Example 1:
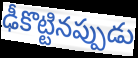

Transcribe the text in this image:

ఢీకొట్టినప్పుడు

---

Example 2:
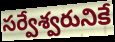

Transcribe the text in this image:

సర్వేశ్వరునికే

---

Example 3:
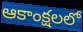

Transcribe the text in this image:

ఆకాంక్షలలో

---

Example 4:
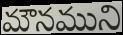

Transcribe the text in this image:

మౌనముని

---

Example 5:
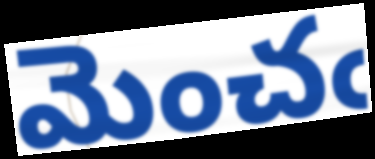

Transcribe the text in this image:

మెంచఁ